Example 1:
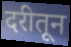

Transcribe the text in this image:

दरीतून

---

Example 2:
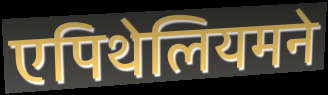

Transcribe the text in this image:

एपिथेलियमने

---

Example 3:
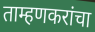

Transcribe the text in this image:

ताम्हणकरांचा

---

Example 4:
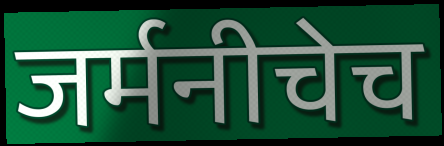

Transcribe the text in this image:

जर्मनीचेच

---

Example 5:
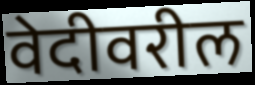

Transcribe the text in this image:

वेदीवरील